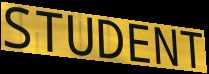
STUDENT